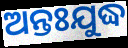
ଅନ୍ତଃଯୁଦ୍ଧ